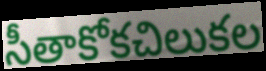
సీతాకోకచిలుకల